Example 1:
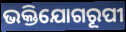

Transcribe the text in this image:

ଭକ୍ତିଯୋଗରୂପୀ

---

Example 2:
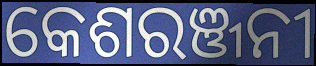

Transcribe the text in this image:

କେଶରଞ୍ଜନୀ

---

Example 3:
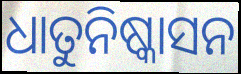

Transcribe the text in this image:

ଧାତୁନିଷ୍କାସନ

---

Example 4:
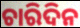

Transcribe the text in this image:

ଚାରିଦିନ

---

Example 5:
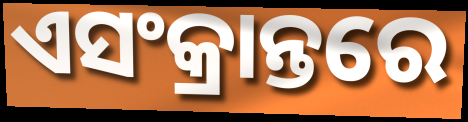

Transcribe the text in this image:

ଏସଂକ୍ରାନ୍ତରେ